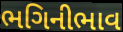
ભગિનીભાવ